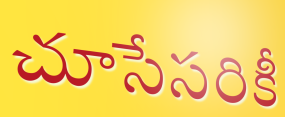
చూసేసరికీ